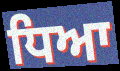
ਧਿਆ